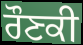
ਰੌਣਕੀ